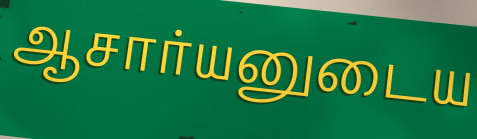
ஆசார்யனுடைய